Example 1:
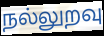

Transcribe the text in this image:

நல்லுறவு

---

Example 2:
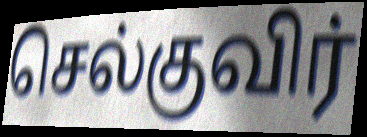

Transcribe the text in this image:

செல்குவிர்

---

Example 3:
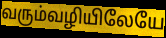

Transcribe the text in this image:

வரும்வழியிலேயே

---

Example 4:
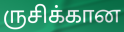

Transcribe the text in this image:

ருசிக்கான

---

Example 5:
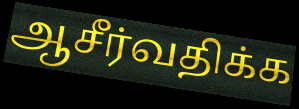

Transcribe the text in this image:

ஆசீர்வதிக்க